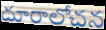
దూరాలోచన